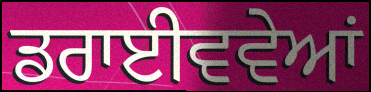
ਡਰਾਈਵਵੇਆਂ